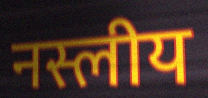
नस्लीय